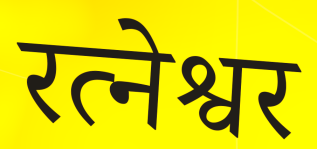
रत्नेश्वर